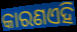
କାରଣଏହି